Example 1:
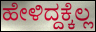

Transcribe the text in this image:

ಹೇಳಿದ್ದಕ್ಕೆಲ್ಲ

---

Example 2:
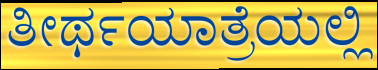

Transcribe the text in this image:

ತೀರ್ಥಯಾತ್ರೆಯಲ್ಲಿ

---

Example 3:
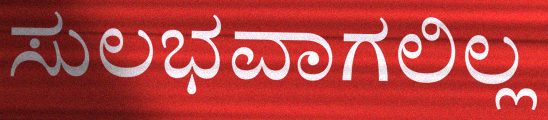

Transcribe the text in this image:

ಸುಲಭವಾಗಲಿಲ್ಲ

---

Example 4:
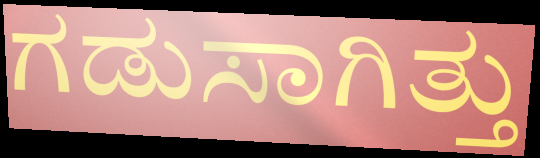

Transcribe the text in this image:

ಗಡುಸಾಗಿತ್ತು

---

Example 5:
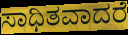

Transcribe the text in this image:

ಸಾಧಿತವಾದರೆ